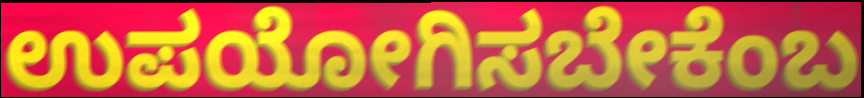
ಉಪಯೋಗಿಸಬೇಕೆಂಬ